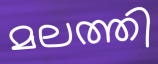
മലത്തി